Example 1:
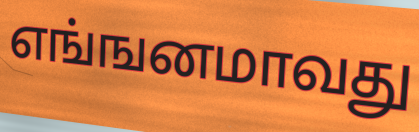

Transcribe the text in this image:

எங்ஙனமாவது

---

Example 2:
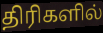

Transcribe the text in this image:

திரிகளில்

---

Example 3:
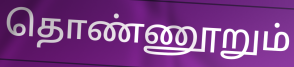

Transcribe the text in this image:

தொண்ணூறும்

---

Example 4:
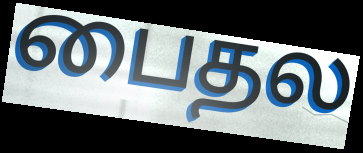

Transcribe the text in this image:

பைதல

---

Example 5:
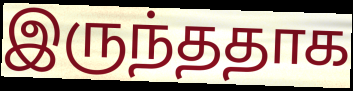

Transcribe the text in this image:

இருந்ததாக